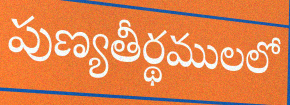
పుణ్యతీర్థములలో